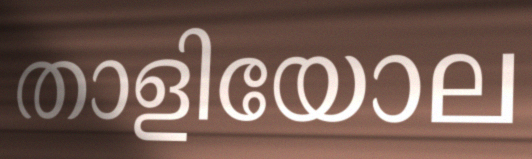
താളിയോല